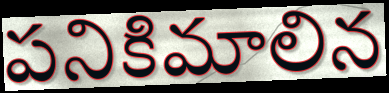
పనికిమాలిన